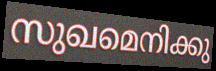
സുഖമെനിക്കു